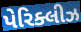
પેરિક્લીઝ